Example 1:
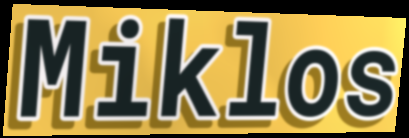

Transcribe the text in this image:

Miklos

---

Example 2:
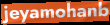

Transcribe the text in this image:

jeyamohanb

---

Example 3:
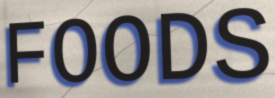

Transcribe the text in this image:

FOODS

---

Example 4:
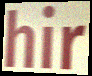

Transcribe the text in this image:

hir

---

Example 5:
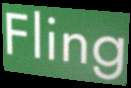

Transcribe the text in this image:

Fling